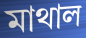
মাথাল